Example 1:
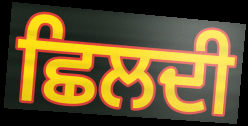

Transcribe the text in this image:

ਛਿਲਦੀ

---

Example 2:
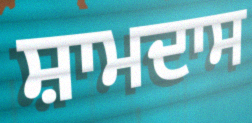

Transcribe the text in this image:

ਸ਼ਾਮਦਾਸ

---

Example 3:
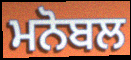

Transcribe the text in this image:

ਮਨੋਬਲ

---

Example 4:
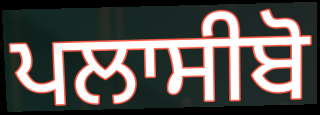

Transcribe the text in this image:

ਪਲਾਸੀਬੋ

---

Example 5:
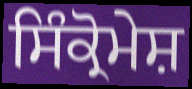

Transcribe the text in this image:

ਸਿੰਕ੍ਰੋਮੇਸ਼